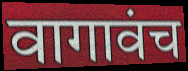
वागावंच